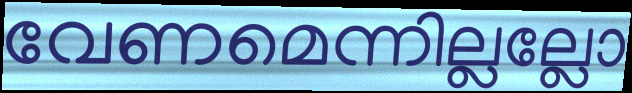
വേണമെന്നില്ലല്ലോ